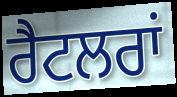
ਰੈਟਲਰਾਂ